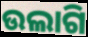
ଉଲାଗି